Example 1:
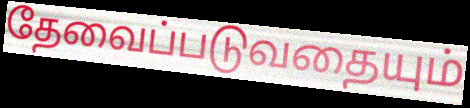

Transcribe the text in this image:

தேவைப்படுவதையும்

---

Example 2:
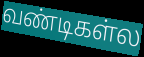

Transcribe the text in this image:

வண்டிகள்ல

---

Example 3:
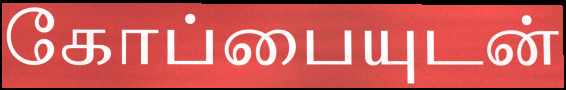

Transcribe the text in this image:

கோப்பையுடன்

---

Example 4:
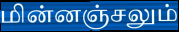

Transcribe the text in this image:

மின்னஞ்சலும்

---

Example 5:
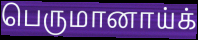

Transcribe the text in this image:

பெருமானாய்க்